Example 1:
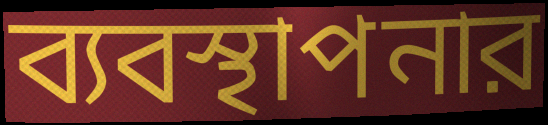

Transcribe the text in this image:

ব্যবস্থাপনার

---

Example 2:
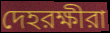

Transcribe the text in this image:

দেহরক্ষীরা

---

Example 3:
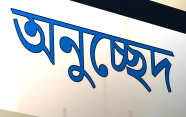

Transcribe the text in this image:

অনুচ্ছেদ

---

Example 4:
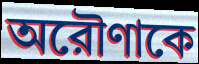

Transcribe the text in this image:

অরৌণাকে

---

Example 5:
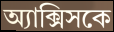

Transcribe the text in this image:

অ্যাক্সিসকে